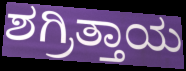
ಶಗ್ರಿತ್ತಾಯ